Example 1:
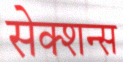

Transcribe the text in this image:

सेक्शन्स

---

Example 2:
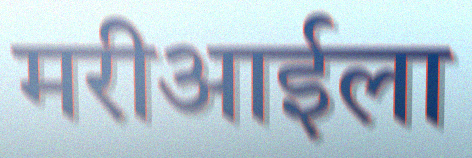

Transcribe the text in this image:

मरीआईला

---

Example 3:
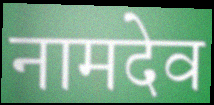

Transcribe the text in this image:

नामदेव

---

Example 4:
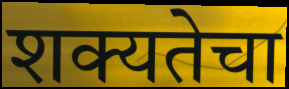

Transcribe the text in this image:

शक्यतेचा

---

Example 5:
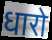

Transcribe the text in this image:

धारो